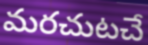
మరచుటచే